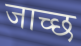
जाच्छ